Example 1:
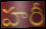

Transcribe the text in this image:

హరీ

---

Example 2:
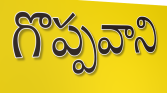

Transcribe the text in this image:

గొప్పవాని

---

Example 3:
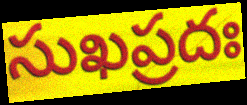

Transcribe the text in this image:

సుఖప్రదః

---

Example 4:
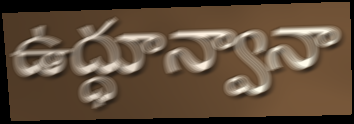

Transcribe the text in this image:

ఉద్ధూన్వానా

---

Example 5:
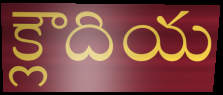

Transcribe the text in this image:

క్లౌదియ